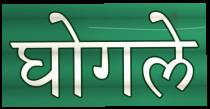
घोगले